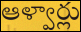
ఆళ్వార్లు